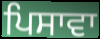
ਪਿਸਾਵਾ